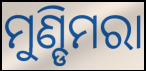
ମୁଣ୍ଡିମରା